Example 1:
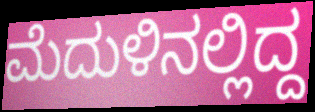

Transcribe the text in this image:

ಮೆದುಳಿನಲ್ಲಿದ್ದ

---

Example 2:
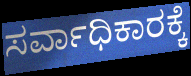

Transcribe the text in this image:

ಸರ್ವಾಧಿಕಾರಕ್ಕೆ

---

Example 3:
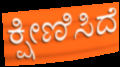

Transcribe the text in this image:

ಕ್ಷೀಣಿಸಿದೆ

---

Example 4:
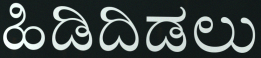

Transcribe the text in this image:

ಹಿಡಿದಿಡಲು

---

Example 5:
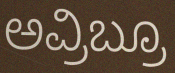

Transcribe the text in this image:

ಅವ್ರಿಬ್ರೂ